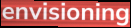
envisioning